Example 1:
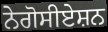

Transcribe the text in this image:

ਨੇਗੋਸੀਏਸ਼ਨ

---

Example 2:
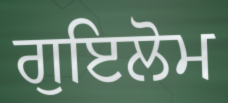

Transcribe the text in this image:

ਗੁਇਲੋਮ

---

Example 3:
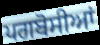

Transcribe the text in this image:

ਪਗਬੋਸੀਆਂ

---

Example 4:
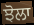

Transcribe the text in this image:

ਝੋਲਾ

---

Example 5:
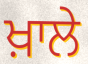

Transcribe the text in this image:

ਖ਼ਾਲੇ